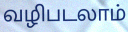
வழிபடலாம்